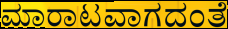
ಮಾರಾಟವಾಗದಂತೆ